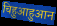
चिहुआहुआन